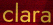
clara